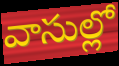
వాసుల్లో